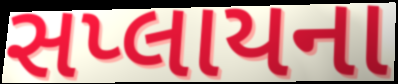
સપ્લાયના